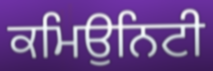
ਕਮਿਉਨਿਟੀ